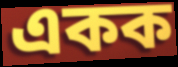
একক